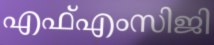
എഫ്എംസിജി